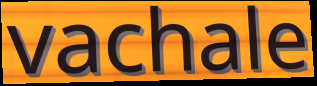
vachale